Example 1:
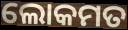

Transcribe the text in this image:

ଲୋକମତ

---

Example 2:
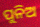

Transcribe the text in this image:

ପୁନିଅ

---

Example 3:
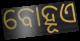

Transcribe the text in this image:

ବୋହୂଏ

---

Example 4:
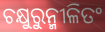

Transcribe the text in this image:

ଚକ୍ଷୁରୁନ୍ମୀଳିତଂ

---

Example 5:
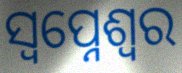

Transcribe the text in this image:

ସ୍ଵପ୍ନେଶ୍ଵର